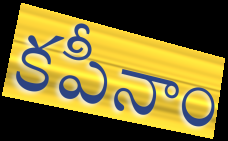
కపీనాం